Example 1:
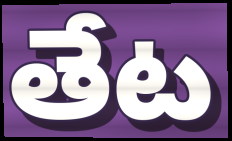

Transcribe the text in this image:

తేట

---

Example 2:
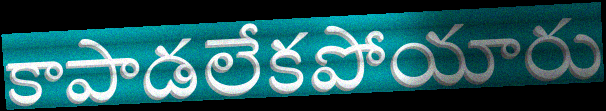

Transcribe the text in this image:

కాపాడలేకపోయారు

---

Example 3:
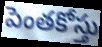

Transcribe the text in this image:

పెంతకోస్తు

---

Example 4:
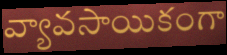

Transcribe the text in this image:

వ్యావసాయికంగా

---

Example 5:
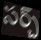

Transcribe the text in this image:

సర్చ్